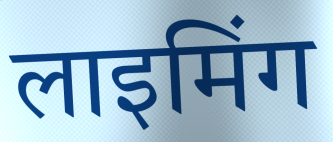
लाइमिंग